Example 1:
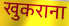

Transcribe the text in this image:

खुकराना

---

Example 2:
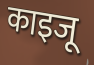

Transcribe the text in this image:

काइजू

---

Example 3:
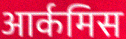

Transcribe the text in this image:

आर्कमिस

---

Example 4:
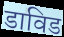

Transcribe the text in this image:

डाविड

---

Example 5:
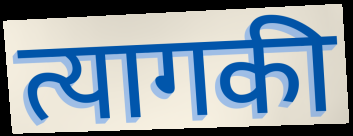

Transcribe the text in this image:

त्यागकी